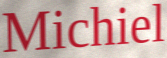
Michiel